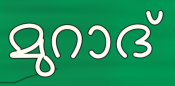
മുറാദ്